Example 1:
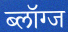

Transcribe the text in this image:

ब्लॉग्ज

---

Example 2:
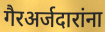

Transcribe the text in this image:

गैरअर्जदारांना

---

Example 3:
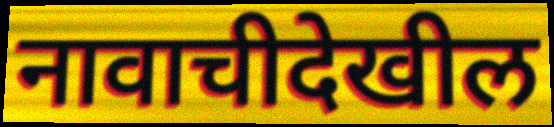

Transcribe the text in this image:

नावाचीदेखील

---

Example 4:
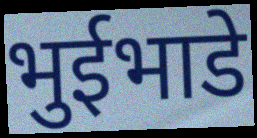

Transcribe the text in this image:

भुईभाडे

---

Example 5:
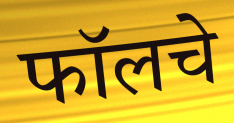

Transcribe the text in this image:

फॉलचे